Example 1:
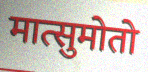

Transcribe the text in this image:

मात्सुमोतो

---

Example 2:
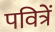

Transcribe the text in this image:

पवित्रें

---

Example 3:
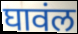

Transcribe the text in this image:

घावंल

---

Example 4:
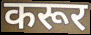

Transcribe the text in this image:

करूर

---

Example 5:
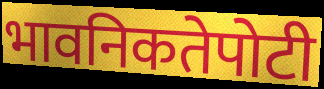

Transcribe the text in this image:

भावनिकतेपोटी